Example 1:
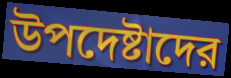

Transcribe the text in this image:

উপদেষ্টাদের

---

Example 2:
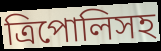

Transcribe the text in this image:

ত্রিপোলিসহ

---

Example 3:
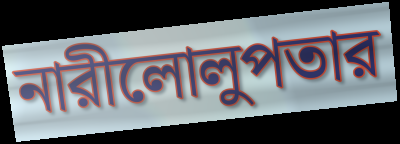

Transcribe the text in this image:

নারীলোলুপতার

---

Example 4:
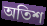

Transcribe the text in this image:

অতিশ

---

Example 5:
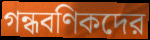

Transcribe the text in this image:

গন্ধবণিকদের